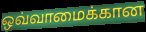
ஒவ்வாமைக்கான